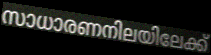
സാധാരണനിലയിലേക്ക്